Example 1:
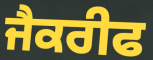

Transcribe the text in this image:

ਜੈਕਰੀਫ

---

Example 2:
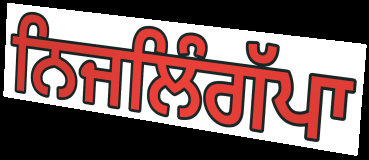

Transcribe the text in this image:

ਨਿਜਲਿੰਗੱਪਾ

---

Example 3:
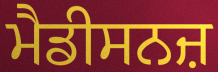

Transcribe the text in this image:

ਮੈਡੀਸਨਜ਼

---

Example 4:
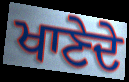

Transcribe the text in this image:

ਖਾਣੇਦੇ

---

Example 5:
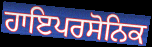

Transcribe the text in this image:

ਹਾਇਪਰਸੋਨਿਕ